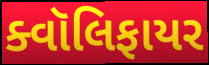
ક્વૉલિફાયર